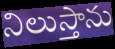
నిలుస్తాను